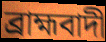
ব্রাহ্মবাদী